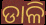
ଡାଳି